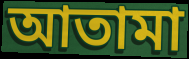
আতামা